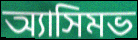
অ্যাসিমভ